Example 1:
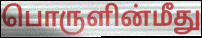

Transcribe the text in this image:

பொருளின்மீது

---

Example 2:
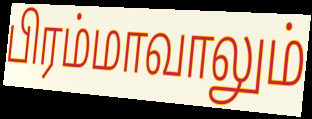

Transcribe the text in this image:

பிரம்மாவாலும்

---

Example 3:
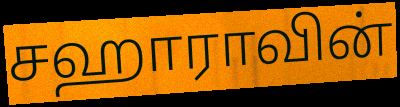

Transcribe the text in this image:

சஹாராவின்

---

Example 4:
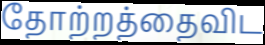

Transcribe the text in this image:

தோற்றத்தைவிட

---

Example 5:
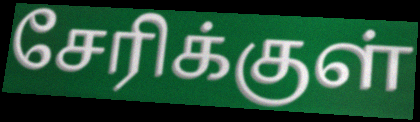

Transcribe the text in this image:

சேரிக்குள்